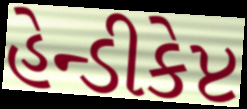
હેન્ડીકેપ્ટ